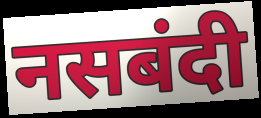
नसबंदी